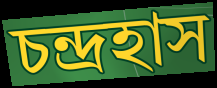
চন্দ্রহাস